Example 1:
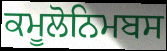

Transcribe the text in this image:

ਕਮੂਲੋਨਿਮਬਸ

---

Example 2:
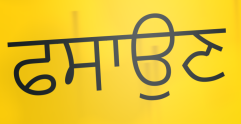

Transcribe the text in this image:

ਫਸਾਉਣ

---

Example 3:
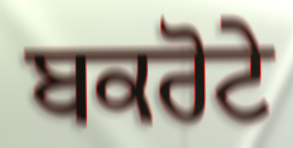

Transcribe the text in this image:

ਬਕਰੋਟੇ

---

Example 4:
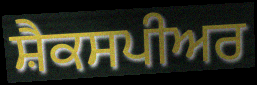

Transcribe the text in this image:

ਸ਼ੈਕਸਪੀਅਰ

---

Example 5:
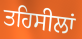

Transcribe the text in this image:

ਤਹਿਸੀਲਾਂ